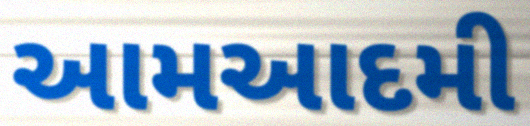
આમઆદમી